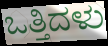
ಒತ್ತಿದಳು